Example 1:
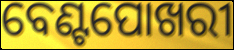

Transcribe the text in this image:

ବେଣ୍ଟପୋଖରୀ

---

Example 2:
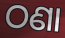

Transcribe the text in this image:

ଠଣା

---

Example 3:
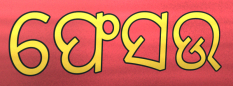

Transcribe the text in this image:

ଫେସଉ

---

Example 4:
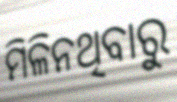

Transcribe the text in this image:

ମିଳିନଥିବାରୁ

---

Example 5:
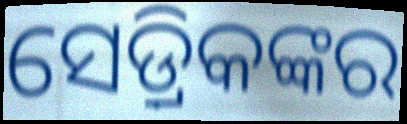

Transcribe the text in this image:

ସେଡ଼୍ରିକଙ୍କର